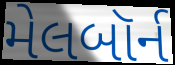
મેલબૉર્ન